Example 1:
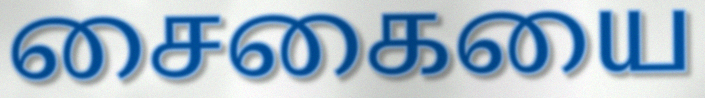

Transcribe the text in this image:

சைகையை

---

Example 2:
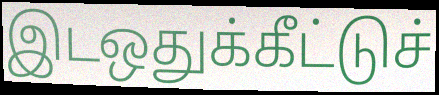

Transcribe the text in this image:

இடஒதுக்கீட்டுச்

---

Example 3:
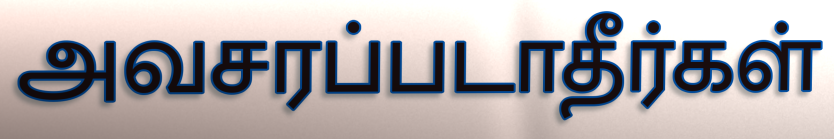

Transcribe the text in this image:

அவசரப்படாதீர்கள்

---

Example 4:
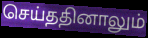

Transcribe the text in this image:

செய்ததினாலும்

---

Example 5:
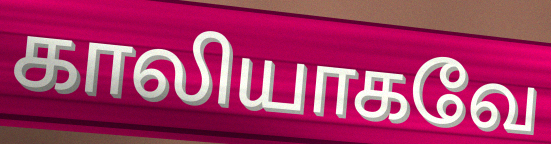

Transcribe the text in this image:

காலியாகவே